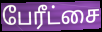
பேரீட்சை